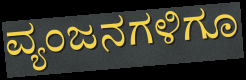
ವ್ಯಂಜನಗಳಿಗೂ